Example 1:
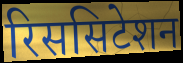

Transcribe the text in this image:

रिससिटेशन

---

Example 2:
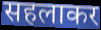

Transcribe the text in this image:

सहलाकर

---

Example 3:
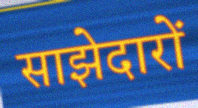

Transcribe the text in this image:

साझेदारों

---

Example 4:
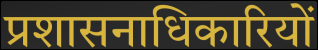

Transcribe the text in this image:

प्रशासनाधिकारियों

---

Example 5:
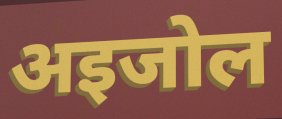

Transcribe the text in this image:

अइजोल